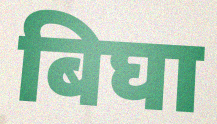
बिघा